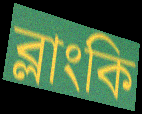
ব্লাংকি